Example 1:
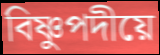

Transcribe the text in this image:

বিষ্ণুপদীয়ে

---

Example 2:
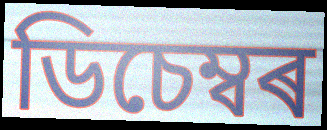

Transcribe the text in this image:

ডিচেম্বৰ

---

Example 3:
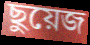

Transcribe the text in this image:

ছুয়েজ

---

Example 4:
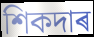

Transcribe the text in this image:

শিকদাৰ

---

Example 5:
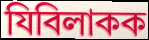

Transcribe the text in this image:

যিবিলাকক